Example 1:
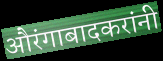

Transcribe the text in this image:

औरंगाबादकरांनी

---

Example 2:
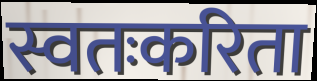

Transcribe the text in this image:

स्वतःकरिता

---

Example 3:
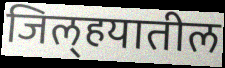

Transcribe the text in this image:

जिल्हयातील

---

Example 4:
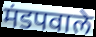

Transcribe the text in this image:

मंडपवाले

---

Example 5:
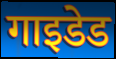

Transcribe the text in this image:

गाइडेड